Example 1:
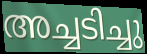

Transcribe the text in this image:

അച്ചടിച്ചു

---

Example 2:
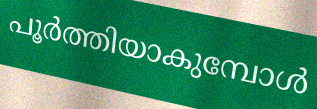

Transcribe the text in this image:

പൂർത്തിയാകുമ്പോൾ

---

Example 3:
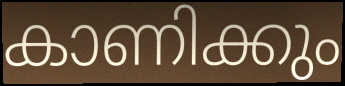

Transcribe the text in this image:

കാണിക്കും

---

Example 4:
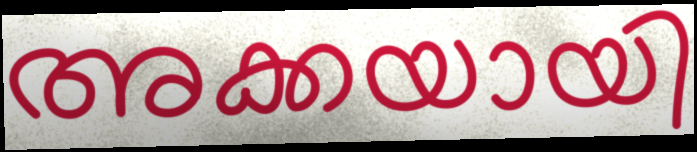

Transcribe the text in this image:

അക്കയായി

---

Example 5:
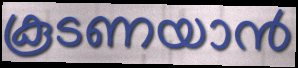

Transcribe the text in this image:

കൂടണയാൻ